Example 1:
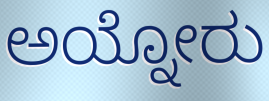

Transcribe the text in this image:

ಅಯ್ನೋರು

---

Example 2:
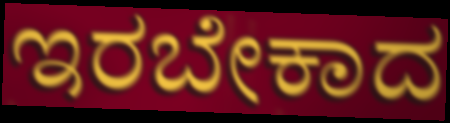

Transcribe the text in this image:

ಇರಬೇಕಾದ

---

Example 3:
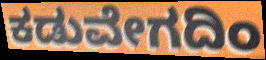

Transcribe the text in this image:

ಕಡುವೇಗದಿಂ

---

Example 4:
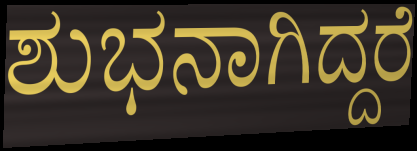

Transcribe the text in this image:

ಶುಭನಾಗಿದ್ದರೆ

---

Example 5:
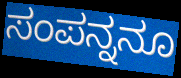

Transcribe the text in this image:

ಸಂಪನ್ನನೂ